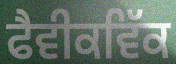
ਫੈਵੀਕਵਿੱਕ